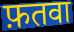
फ़तवा